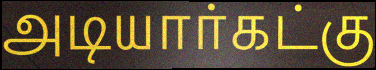
அடியார்கட்கு